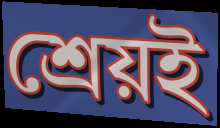
শ্রেয়ই